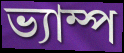
ভ্যাম্প